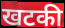
खटकी